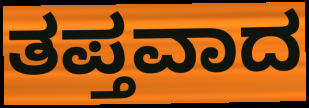
ತಪ್ತವಾದ